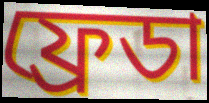
ফ্রেডা